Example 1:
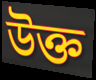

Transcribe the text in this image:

উক্ত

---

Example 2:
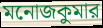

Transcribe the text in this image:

মনোজকুমার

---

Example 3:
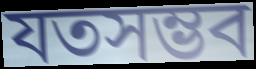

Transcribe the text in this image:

যতসম্ভব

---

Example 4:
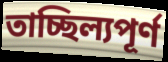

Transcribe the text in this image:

তাচ্ছিল্যপূর্ণ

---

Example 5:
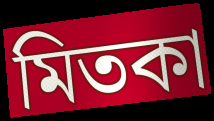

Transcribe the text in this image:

মিতকা